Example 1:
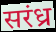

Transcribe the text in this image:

सरंध्र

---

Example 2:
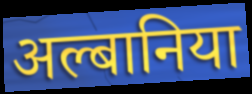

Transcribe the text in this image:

अल्बानिया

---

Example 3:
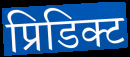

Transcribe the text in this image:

प्रिडिक्ट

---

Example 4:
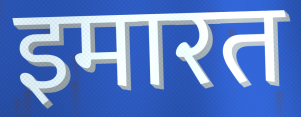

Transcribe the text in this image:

इमारत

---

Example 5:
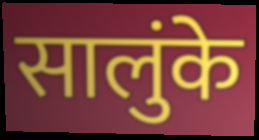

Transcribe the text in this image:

सालुंके